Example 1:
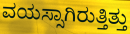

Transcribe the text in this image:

ವಯಸ್ಸಾಗಿರುತ್ತಿತ್ತು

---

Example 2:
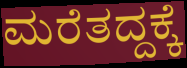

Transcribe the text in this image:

ಮರೆತದ್ದಕ್ಕೆ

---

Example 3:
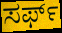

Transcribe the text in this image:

ಸರ್ಫ್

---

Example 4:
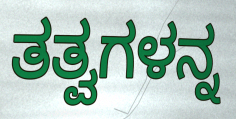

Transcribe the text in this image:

ತತ್ವಗಳನ್ನ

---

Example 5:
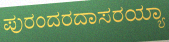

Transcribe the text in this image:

ಪುರಂದರದಾಸರಯ್ಯಾ